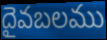
దైవబలము